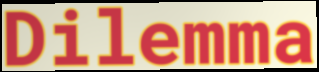
Dilemma